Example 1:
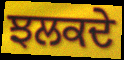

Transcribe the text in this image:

ਝਲਕਦੇ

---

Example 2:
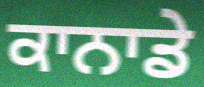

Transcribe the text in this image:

ਕਾਨਾਡੇ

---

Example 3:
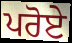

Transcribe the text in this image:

ਪਰੋਏ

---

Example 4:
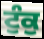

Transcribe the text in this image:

ਟੁੰਕੁ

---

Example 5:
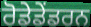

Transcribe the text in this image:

ਰੋਡੇਡੇਂਡਰਨ